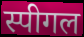
स्पीगल